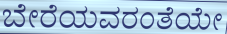
ಬೇರೆಯವರಂತೆಯೇ